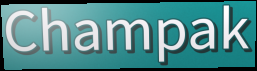
Champak